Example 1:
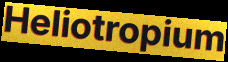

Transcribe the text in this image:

Heliotropium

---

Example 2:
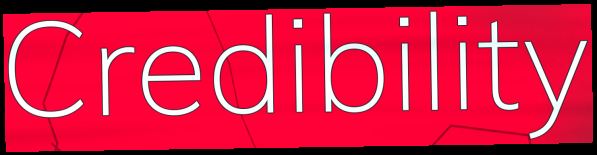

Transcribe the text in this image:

Credibility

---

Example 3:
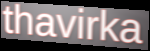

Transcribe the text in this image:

thavirka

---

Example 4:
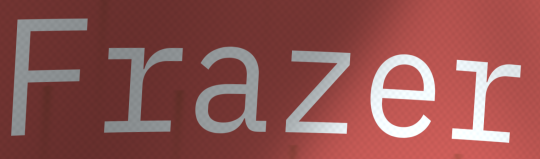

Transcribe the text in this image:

Frazer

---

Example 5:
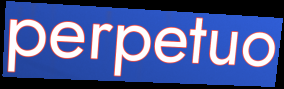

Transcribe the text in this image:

perpetuo